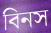
বিনস